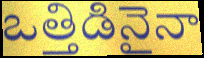
ఒత్తిడినైనా